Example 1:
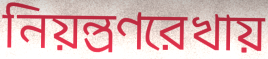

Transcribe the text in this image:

নিয়ন্ত্রণরেখায়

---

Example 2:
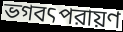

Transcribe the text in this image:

ভগবৎপরায়ণ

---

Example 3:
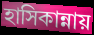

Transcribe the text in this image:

হাসিকান্নায়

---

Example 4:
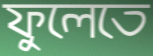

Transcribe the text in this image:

ফুলেতে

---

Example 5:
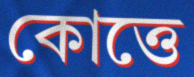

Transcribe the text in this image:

কোত্তে